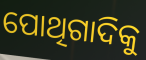
ପୋଥିଗାଦିକୁ